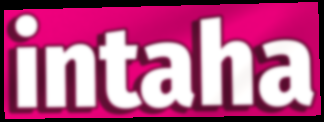
intaha